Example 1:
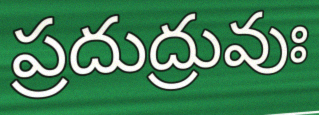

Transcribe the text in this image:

ప్రదుద్రువుః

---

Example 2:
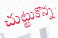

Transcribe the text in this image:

చుట్టుకొన్న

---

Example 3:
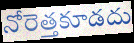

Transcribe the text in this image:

నోరెత్తకూడదు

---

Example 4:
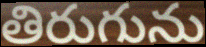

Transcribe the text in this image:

తిరుగును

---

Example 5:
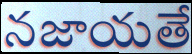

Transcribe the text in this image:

నజాయతే